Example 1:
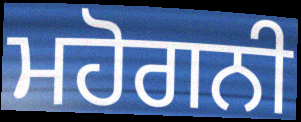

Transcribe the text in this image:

ਮਹੋਗਨੀ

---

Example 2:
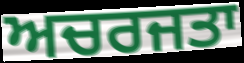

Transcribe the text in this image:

ਅਚਰਜਤਾ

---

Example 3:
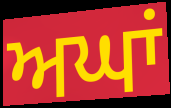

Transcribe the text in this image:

ਅਘਾਂ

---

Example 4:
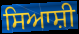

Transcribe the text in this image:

ਸਿਆਸ਼ੀ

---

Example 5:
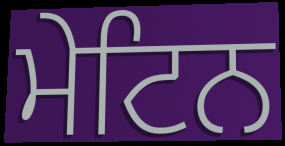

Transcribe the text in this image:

ਮੇਟਿਨ